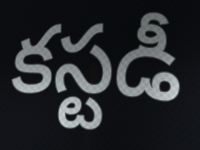
కస్టడీ